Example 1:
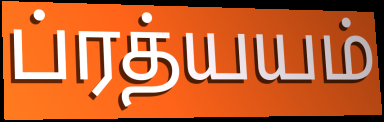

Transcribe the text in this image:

ப்ரத்யயம்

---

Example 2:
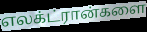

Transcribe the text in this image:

எலக்ட்ரான்களை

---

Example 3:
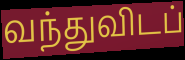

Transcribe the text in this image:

வந்துவிடப்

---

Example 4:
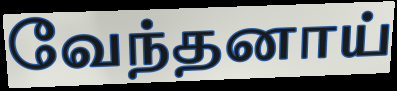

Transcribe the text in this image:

வேந்தனாய்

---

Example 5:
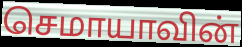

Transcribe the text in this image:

செமாயாவின்